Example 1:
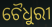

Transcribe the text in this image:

ଚୈଧୁରୀ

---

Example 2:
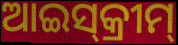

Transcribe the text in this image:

ଆଇସ୍‌କ୍ରୀମ୍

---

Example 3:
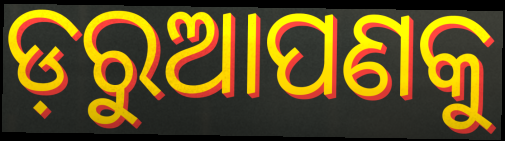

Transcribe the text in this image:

ଡ଼ରୁଆପଣକୁ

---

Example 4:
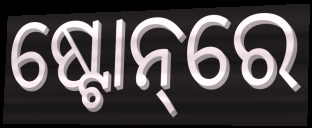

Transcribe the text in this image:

ଷ୍ଟୋନ୍‌ରେ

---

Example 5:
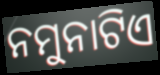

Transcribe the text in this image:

ନମୁନାଟିଏ